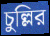
চুল্লির